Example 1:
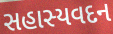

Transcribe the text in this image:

સહાસ્યવદન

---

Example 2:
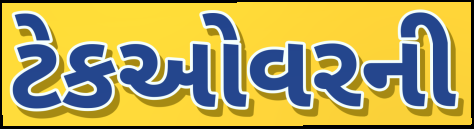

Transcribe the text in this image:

ટેકઓવરની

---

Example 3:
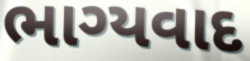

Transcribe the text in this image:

ભાગ્યવાદ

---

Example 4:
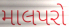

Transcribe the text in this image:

માલપરો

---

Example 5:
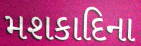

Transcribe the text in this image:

મશકાદિના